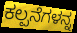
ಕಲ್ಪನೆಗಳನ್ನ